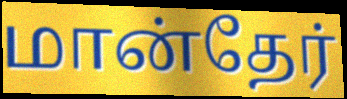
மான்தேர்